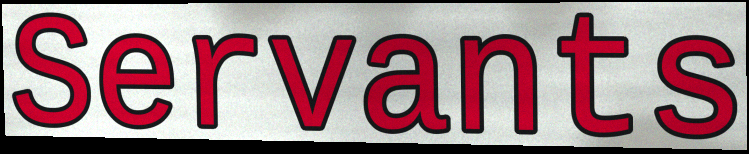
Servants